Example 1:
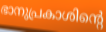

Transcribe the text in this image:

ഭാനുപ്രകാശിന്റെ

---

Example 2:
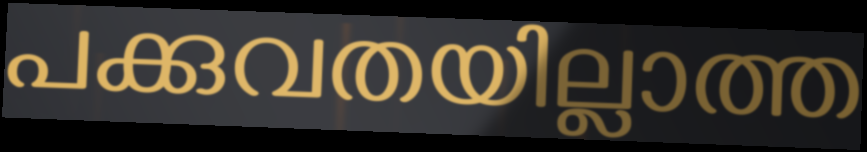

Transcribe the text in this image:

പക്കുവതയില്ലാത്ത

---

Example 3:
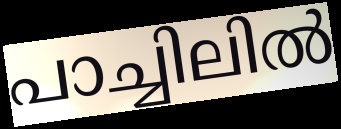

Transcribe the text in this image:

പാച്ചിലിൽ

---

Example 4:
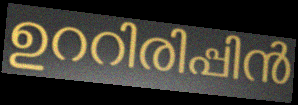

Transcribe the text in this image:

ഉററിരിപ്പിൻ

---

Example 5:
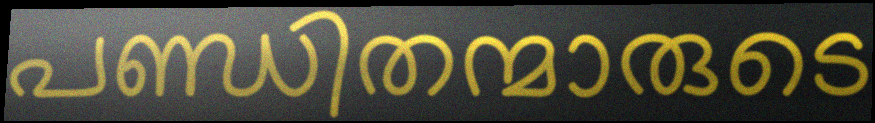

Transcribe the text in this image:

പണ്ഡിതന്മാരുടെ